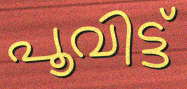
പൂവിട്ട്